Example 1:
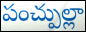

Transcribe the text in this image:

పంచ్పుల్లా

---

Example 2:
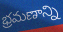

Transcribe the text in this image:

భ్రమణాన్ని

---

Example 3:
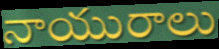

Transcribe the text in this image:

నాయురాలు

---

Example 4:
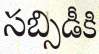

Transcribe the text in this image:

సబ్సిడీకి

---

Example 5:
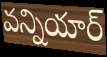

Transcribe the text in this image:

వన్నియార్